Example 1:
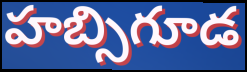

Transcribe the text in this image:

హబ్సిగూడ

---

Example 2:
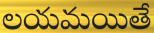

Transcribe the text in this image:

లయమయితే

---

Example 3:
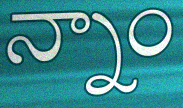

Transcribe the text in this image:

న్నాం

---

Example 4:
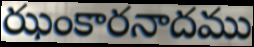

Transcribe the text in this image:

ఝంకారనాదము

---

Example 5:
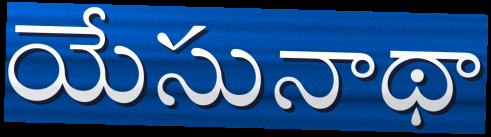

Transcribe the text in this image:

యేసునాథా